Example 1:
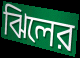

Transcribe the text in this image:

ঝিলের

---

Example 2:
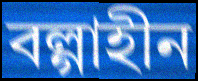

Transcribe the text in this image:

বল্গাহীন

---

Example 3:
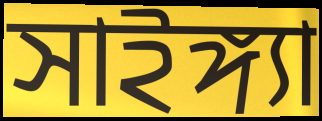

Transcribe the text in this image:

সাইঙ্গ্যা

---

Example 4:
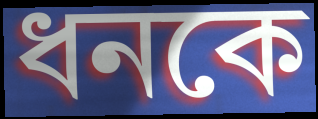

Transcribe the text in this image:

ধনকে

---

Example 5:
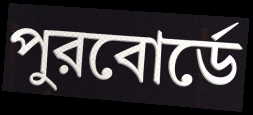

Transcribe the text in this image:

পুরবোর্ডে